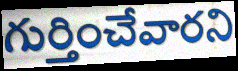
గుర్తించేవారని